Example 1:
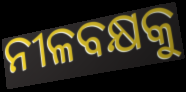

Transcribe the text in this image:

ନୀଳବକ୍ଷକୁ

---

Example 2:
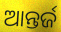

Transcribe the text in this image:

ଆନ୍ତର୍ଜ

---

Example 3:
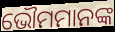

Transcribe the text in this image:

ଭୌମମାନଙ୍କ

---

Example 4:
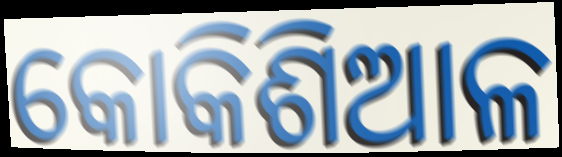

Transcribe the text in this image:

କୋକିଶିଆଳ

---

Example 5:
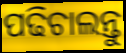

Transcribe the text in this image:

ପଢିଚାଲନ୍ତୁ